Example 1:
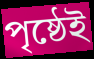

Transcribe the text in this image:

পৃষ্ঠেই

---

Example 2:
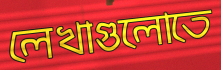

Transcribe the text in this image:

লেখাগুলোতে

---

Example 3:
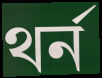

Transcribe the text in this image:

থর্ন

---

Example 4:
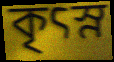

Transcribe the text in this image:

কৃৎস্ন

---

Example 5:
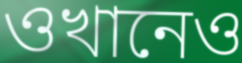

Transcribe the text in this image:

ওখানেও